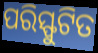
ପରିସ୍ଫୁଟିତ